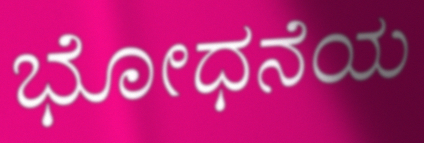
ಭೋಧನೆಯ